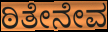
ಠಿತೇನೇವ